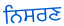
ਨਿਸਰਣ